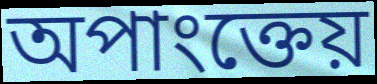
অপাংক্তেয়